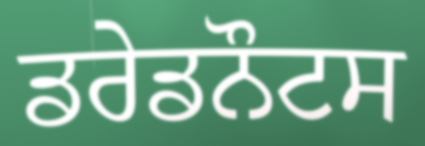
ਡਰੇਡਨੌਟਸ